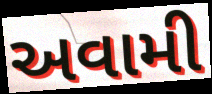
અવામી